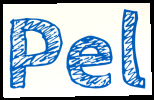
Pel